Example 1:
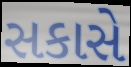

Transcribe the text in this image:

સકાસે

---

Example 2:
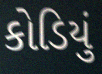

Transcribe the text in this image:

કોડિયું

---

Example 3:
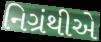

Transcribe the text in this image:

નિગ્રંથીએ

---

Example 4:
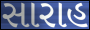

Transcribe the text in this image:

સારાહ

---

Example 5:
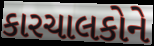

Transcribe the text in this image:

કારચાલકોને